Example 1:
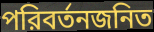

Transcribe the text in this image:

পরিবর্তনজনিত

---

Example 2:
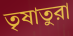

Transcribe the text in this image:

তৃষাতুরা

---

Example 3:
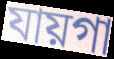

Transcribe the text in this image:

যায়গা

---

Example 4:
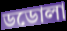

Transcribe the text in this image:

ডডোলা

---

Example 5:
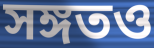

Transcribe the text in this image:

সঙ্গতও